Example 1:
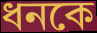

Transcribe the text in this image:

ধনকে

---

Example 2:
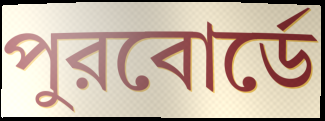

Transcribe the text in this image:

পুরবোর্ডে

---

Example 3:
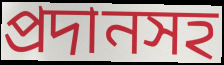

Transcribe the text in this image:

প্রদানসহ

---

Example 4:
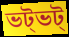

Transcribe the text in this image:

ভট্ভট্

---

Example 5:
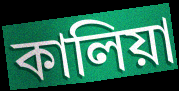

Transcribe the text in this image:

কালিয়া